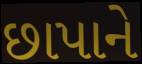
છાપાને